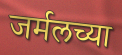
जर्मलच्या